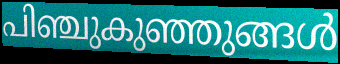
പിഞ്ചുകുഞ്ഞുങ്ങൾ